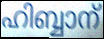
ഹിബ്ബാന്